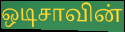
ஒடிசாவின்